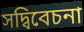
সদ্বিবেচনা